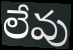
లేవు